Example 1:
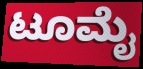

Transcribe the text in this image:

ಟೂಮೈ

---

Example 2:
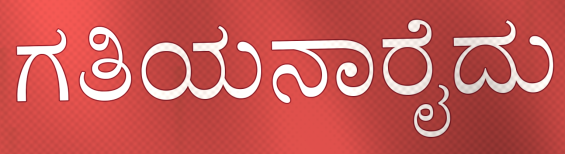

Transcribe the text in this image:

ಗತಿಯನಾರೈದು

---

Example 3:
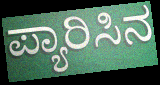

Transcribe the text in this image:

ಪ್ಯಾರಿಸಿನ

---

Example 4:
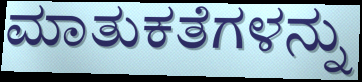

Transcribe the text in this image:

ಮಾತುಕತೆಗಳನ್ನು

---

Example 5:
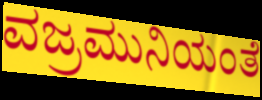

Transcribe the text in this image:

ವಜ್ರಮುನಿಯಂತೆ